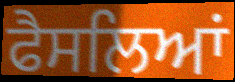
ਫੈਸਲਿਆਂ